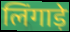
लिंगाड़े